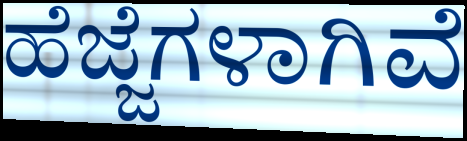
ಹೆಜ್ಜೆಗಳಾಗಿವೆ